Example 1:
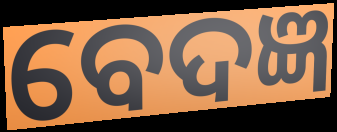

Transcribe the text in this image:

ବେଦଜ୍ଞ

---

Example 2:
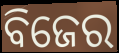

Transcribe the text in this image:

ବିଜେର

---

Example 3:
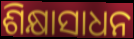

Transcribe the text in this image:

ଶିକ୍ଷାସାଧନ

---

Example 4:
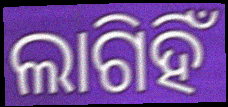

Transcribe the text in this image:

ଲାଗିହିଁ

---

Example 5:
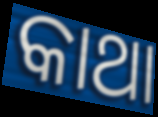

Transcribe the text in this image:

କାଥା